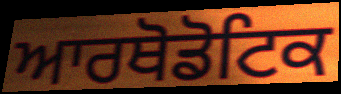
ਆਰਥੋਡੋਟਿਕ